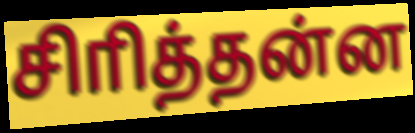
சிரித்தன்ன